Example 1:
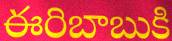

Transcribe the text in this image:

ఈరిబాబుకి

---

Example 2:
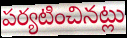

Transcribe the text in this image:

పర్యటించినట్లు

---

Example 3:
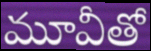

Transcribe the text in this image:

మూవీతో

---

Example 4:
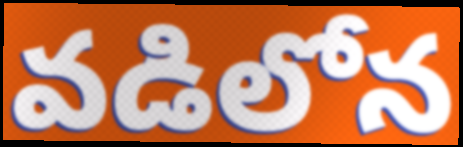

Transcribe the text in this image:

వడిలోన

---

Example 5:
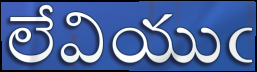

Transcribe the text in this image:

లేవియుఁ